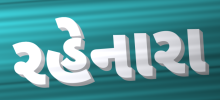
રહેનારા